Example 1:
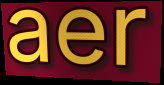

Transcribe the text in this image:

aer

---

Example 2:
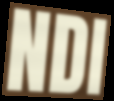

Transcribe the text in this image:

NDI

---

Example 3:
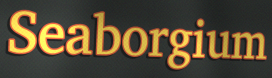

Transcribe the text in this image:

Seaborgium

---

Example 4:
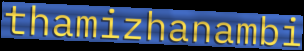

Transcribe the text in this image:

thamizhanambi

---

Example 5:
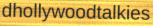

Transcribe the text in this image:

dhollywoodtalkies